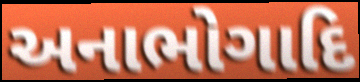
અનાભોગાદિ